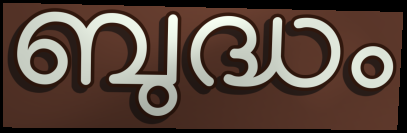
ബുദ്ധം